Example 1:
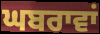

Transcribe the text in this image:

ਘਬਰਾਵਾਂ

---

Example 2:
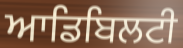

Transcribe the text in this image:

ਆਡਿਬਿਲਟੀ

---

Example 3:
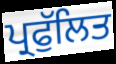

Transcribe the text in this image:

ਪ੍ਰਫੁੱਲਿਤ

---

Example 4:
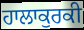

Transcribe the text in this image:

ਹਾਲਾਕੁਰਕੀ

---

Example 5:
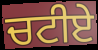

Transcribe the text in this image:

ਚਟੀਏ